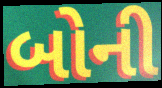
બોની